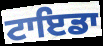
ਟਾਇਡਾ